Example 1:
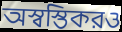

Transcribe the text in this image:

অস্বস্তিকরও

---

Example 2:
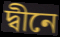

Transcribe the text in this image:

দ্বীনে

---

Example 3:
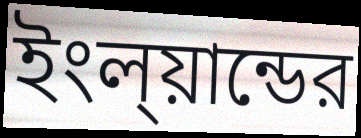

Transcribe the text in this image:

ইংল্য়ান্ডের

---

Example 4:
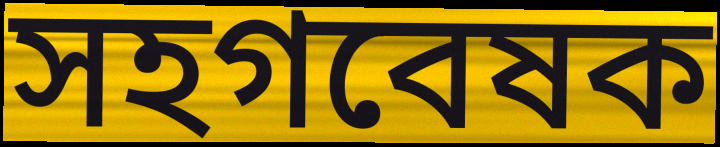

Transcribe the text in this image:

সহগবেষক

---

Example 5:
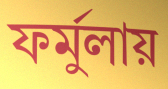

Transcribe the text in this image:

ফর্মুলায়